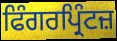
ਫਿੰਗਰਪ੍ਰਿੰਟਜ਼